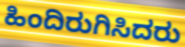
ಹಿಂದಿರುಗಿಸಿದರು